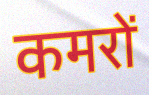
कमरों